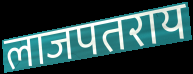
लाजपतराय